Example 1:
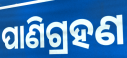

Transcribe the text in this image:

ପାଣିଗ୍ରହଣ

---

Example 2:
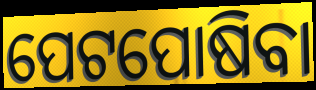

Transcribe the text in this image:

ପେଟପୋଷିବା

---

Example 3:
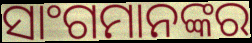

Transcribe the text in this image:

ସାଂଗମାନଙ୍କର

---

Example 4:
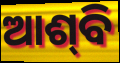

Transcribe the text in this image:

ଆଶ୍‍ବି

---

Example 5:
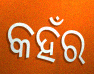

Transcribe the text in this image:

କହଁର